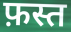
फ़स्त